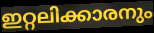
ഇറ്റലിക്കാരനും